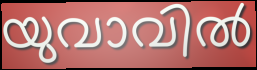
യുവാവിൽ